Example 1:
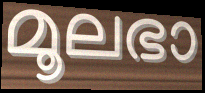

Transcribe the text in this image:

മൂലഭാ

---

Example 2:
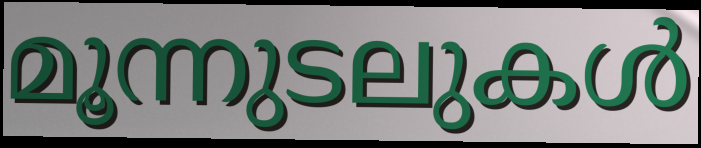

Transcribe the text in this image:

മൂന്നുടലുകൾ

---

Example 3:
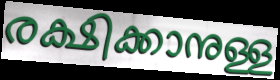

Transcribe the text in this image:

രക്ഷിക്കാനുള്ള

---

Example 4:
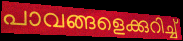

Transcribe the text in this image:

പാവങ്ങളെക്കുറിച്ച്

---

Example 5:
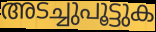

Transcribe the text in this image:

അടച്ചുപൂട്ടുക